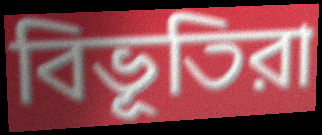
বিভূতিরা